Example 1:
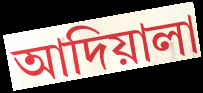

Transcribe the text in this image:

আদিয়ালা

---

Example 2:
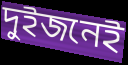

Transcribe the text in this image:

দুইজনেই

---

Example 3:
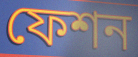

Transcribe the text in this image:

ফেশন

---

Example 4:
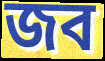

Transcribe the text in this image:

জব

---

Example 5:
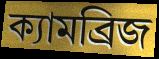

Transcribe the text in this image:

ক্যামব্রিজ